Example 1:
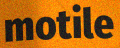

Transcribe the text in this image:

motile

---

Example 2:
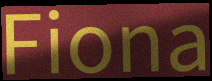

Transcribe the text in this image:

Fiona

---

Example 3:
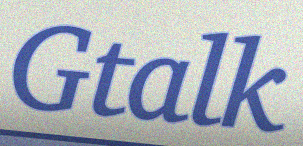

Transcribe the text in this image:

Gtalk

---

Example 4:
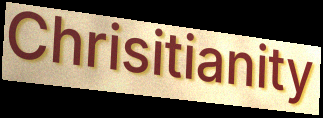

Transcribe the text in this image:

Chrisitianity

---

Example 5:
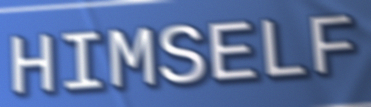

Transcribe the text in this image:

HIMSELF